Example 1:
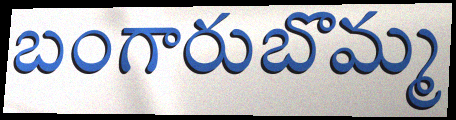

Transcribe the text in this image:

బంగారుబొమ్మ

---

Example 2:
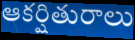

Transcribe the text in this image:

ఆకర్షితురాలు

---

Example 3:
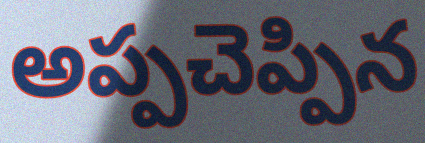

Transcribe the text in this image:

అప్పచెప్పిన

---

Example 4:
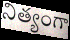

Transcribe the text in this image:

నిత్యంగా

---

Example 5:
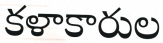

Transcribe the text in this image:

కళాకారుల